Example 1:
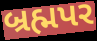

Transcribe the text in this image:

બ્રહ્મપર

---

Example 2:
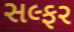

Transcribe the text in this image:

સલ્ફર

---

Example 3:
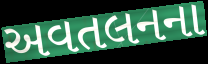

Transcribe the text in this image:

અવતલનના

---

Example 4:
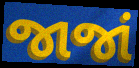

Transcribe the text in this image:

જાજાં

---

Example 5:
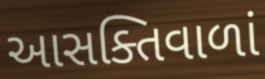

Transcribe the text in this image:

આસક્તિવાળાં